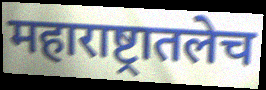
महाराष्ट्रातलेच